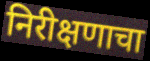
निरीक्षणाचा